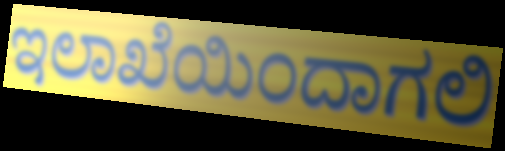
ಇಲಾಖೆಯಿಂದಾಗಲಿ